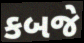
કબજે